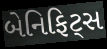
બેનિફિટ્સ